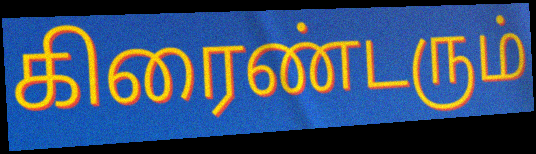
கிரைண்டரும்